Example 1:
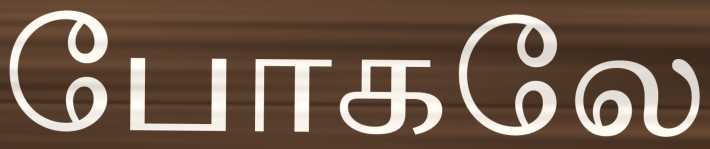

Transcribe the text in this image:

போகலே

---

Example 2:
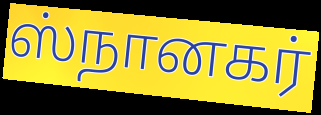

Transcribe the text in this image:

ஸ்நானகர்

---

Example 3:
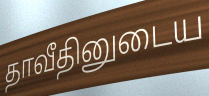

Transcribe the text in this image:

தாவீதினுடைய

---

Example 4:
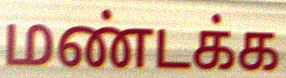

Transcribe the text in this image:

மண்டக்க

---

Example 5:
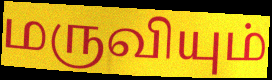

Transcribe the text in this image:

மருவியும்